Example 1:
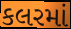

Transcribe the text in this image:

કલરમાં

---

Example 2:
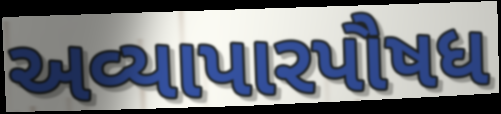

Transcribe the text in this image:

અવ્યાપારપૌષધ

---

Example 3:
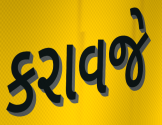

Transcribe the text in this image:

કરાવજે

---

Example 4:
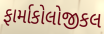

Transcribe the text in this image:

ફાર્માકોલોજીકલ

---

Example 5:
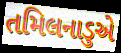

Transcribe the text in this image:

તમિલનાડુએ